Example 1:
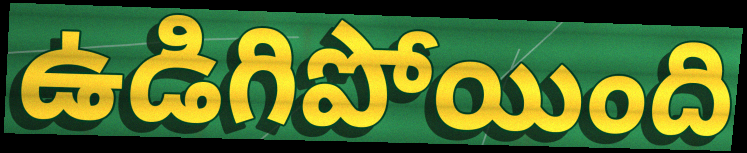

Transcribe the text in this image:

ఉడిగిపోయింది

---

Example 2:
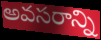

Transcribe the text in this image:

అవసరాన్ని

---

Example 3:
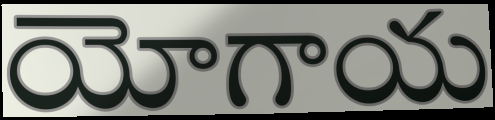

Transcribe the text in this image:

యోగాయ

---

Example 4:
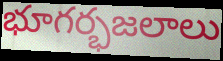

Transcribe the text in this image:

భూగర్భజలాలు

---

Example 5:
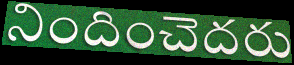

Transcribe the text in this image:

నిందించెదరు